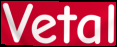
Vetal